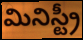
మినిస్ట్రీ